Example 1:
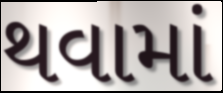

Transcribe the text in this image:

થવામાં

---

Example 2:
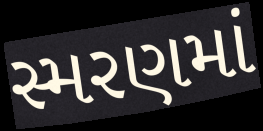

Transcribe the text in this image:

સ્મરણમાં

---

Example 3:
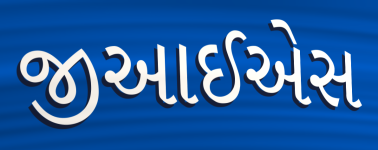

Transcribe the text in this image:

જીઆઈએસ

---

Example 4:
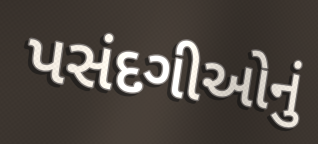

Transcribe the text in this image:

પસંદગીઓનું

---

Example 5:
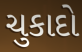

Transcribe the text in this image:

ચુકાદો